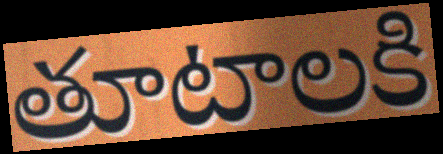
తూటాలకి